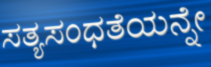
ಸತ್ಯಸಂಧತೆಯನ್ನೇ